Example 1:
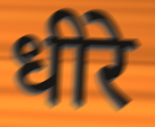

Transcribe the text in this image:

धीरे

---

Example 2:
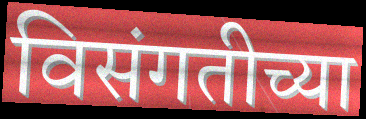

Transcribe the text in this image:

विसंगतीच्या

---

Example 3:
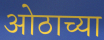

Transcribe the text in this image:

ओठाच्या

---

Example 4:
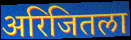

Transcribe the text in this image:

अरिजितला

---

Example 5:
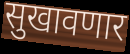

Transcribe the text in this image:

सुखावणार